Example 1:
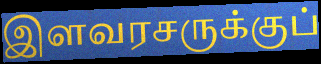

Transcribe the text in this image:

இளவரசருக்குப்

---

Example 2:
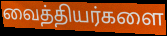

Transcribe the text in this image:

வைத்தியர்களை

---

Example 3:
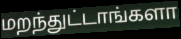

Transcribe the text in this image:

மறந்துட்டாங்களா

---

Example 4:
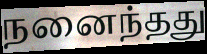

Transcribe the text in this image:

நனைந்தது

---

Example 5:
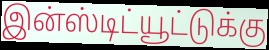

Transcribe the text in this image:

இன்ஸ்டிட்யூட்டுக்கு